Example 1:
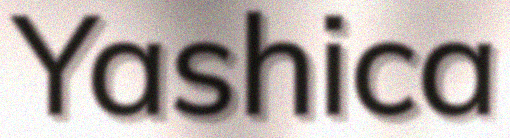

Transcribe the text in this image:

Yashica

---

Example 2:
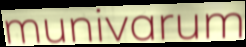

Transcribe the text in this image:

munivarum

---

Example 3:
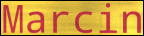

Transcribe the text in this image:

Marcin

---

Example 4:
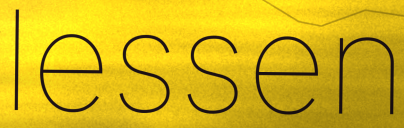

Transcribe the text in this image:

lessen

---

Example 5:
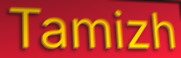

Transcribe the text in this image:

Tamizh